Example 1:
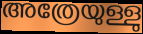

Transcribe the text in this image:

അത്രേയുള്ളു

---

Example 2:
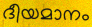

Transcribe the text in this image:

ദീയമാനം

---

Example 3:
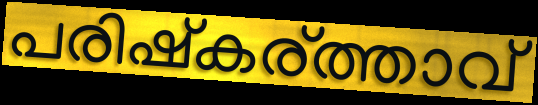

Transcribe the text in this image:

പരിഷ്കര്ത്താവ്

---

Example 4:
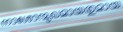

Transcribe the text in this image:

നാശോന്മുഖമായതുമായ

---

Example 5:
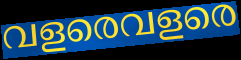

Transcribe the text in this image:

വളരെവളരെ